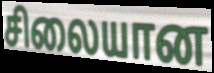
சிலையான